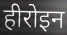
हीरोइन